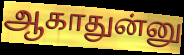
ஆகாதுன்னு